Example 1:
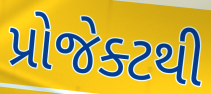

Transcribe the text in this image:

પ્રોજેક્ટથી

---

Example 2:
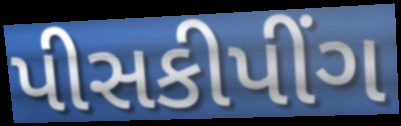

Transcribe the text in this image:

પીસકીપીંગ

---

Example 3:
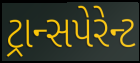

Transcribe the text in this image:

ટ્રાન્સપેરેન્ટ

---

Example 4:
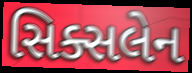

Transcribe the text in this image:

સિક્સલેન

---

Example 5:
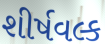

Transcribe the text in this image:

શીર્ષવલ્ક